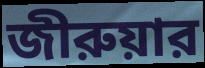
জীরুয়ার